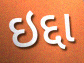
ઇદ્દા